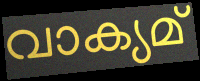
വാക്യമ്